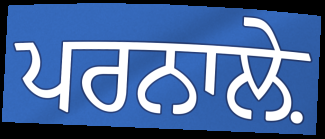
ਪਰਨਾਲ਼ੇ